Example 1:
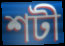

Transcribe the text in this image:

শটী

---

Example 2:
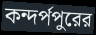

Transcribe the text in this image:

কন্দর্পপুরের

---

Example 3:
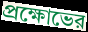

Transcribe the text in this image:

প্রক্ষোভের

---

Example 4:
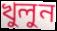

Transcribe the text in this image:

খুলুন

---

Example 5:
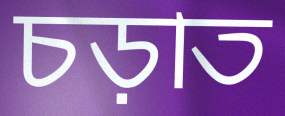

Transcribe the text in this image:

চড়াত